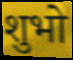
शुभो